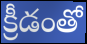
క్రీడంతో